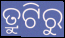
ତ୍ରୁଟିରୁ